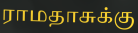
ராமதாசுக்கு